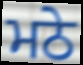
ਮਠੇ